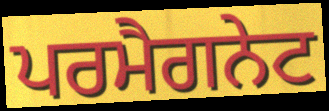
ਪਰਮੈਗਨੇਟ